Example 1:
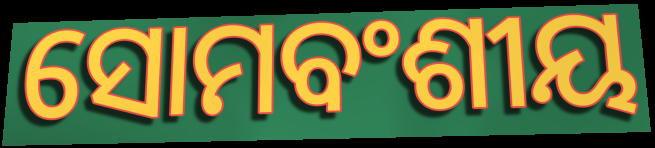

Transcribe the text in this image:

ସୋମବଂଶୀୟ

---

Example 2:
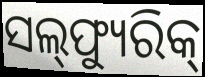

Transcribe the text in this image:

ସଲ୍‌ଫ୍ୟୁରିକ୍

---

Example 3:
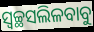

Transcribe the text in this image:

ସ୍ୱଚ୍ଛସଲିଳବାବୁ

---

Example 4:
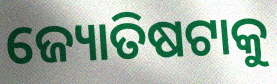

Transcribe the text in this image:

ଜ୍ୟୋତିଷଟାକୁ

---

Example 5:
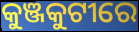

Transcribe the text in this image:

କୁଞ୍ଜକୁଟୀରେ